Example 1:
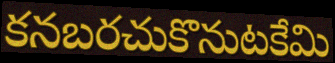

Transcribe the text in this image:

కనబరచుకొనుటకేమి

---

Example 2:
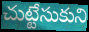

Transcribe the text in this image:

చుట్టేసుకుని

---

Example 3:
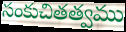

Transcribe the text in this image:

సంకుచితత్వము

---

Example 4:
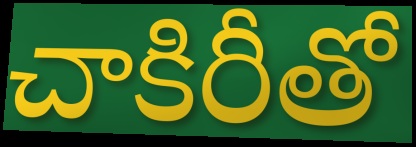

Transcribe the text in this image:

చాకిరీతో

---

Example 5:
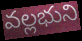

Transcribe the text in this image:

వల్లభుని